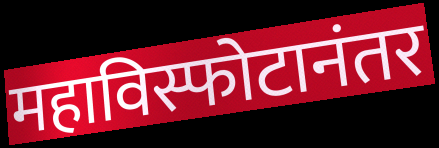
महाविस्फोटानंतर